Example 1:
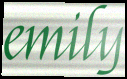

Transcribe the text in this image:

emily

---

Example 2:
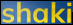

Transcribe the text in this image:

shaki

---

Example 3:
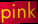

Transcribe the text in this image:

pink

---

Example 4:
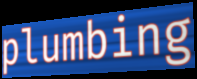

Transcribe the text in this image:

plumbing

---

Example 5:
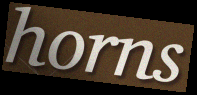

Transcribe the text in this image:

horns